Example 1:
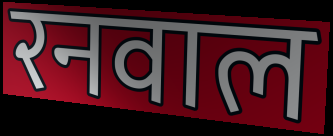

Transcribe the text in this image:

रनवाल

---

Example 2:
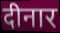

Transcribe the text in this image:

दीनार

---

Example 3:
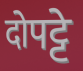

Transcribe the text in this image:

दोपट्टे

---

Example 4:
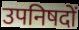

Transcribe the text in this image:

उपनिषदों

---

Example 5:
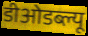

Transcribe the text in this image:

डीओडब्ल्यू